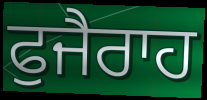
ਫੁਜੈਰਾਹ